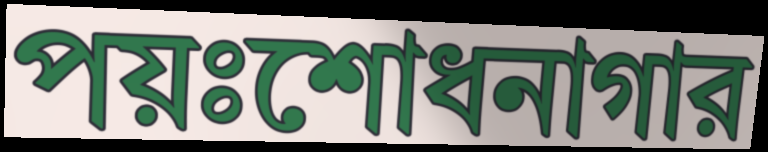
পয়ঃশোধনাগার